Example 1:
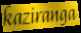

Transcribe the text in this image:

kaziranga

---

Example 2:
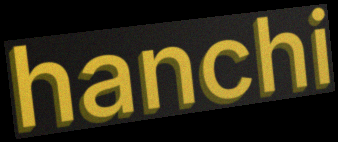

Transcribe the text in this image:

hanchi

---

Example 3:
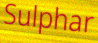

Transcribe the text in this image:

Sulphar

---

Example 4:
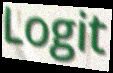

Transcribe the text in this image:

Logit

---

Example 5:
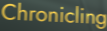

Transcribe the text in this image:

Chronicling